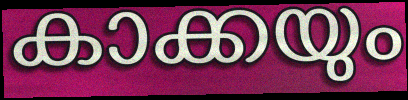
കാക്കയും